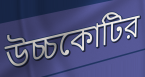
উচ্চকোটির